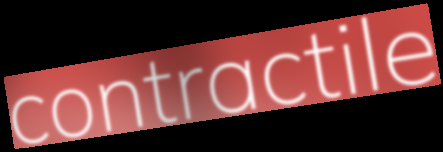
contractile